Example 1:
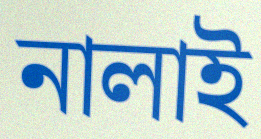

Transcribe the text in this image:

নালাই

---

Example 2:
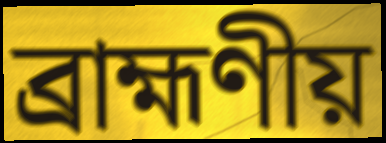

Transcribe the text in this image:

ব্রাহ্মণীয়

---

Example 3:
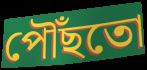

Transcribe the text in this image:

পৌঁছতো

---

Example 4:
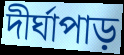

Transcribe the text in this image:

দীর্ঘাপাড়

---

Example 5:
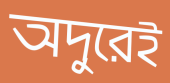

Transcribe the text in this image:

অদুরেই